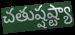
చతుష్షష్ట్యా